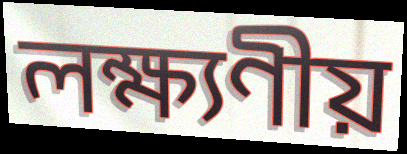
লক্ষ্যণীয়